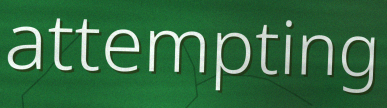
attempting